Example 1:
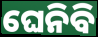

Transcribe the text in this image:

ଘେନିବି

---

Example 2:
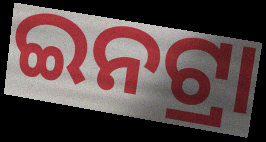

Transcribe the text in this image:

ଇନଟ୍ରା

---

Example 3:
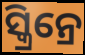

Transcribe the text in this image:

ସ୍କ୍ରିନ୍ରେ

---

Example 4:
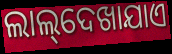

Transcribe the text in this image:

ଲାଲ୍‌ଦେଖାଯାଏ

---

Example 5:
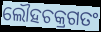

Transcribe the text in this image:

ଲୌହଚକ୍ରଗତଂ